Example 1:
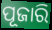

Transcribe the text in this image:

ପୂଜାରି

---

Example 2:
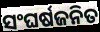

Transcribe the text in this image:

ସଂଘର୍ଷଜନିତ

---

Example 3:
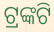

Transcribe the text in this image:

ଟ୍ରଙ୍କଟି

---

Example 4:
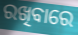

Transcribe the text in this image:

ରଖିବାରେ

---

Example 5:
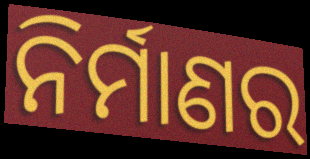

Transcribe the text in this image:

ନିର୍ମାଣର